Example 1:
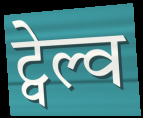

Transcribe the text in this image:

ट्वेल्व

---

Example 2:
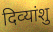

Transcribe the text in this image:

दिव्‍यांशु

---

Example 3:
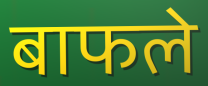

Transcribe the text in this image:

बाफले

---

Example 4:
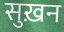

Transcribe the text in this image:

सुख़न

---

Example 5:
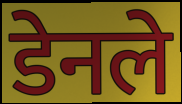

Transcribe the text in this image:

डेनले